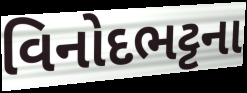
વિનોદભટ્ટના